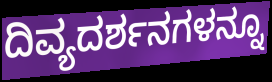
ದಿವ್ಯದರ್ಶನಗಳನ್ನೂ